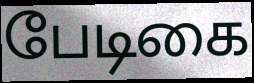
பேடிகை